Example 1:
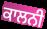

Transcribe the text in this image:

ਕਾਲਨੀ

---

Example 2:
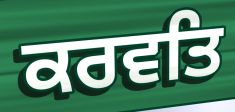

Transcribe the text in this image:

ਕਰਵਤਿ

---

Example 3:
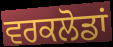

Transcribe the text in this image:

ਵਰਕਲੋਡਾਂ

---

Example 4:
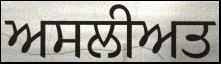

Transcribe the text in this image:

ਅਸਲੀਅਤ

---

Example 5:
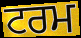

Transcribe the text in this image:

ਟਰਮ